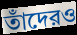
তাঁদেরও